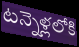
టన్నెళ్లలోకి